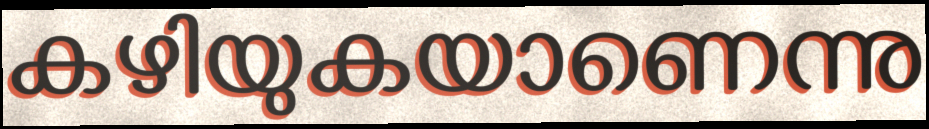
കഴിയുകയാണെന്നു